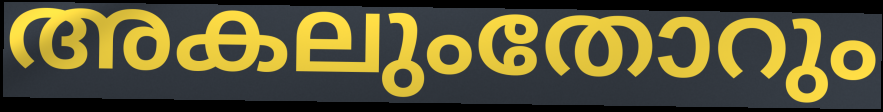
അകലുംതോറും